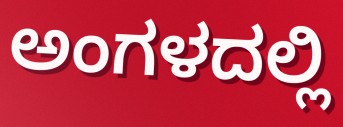
ಅಂಗಳದಲ್ಲಿ